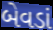
બેવડાં